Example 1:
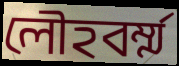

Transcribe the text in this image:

লৌহবর্ম্ম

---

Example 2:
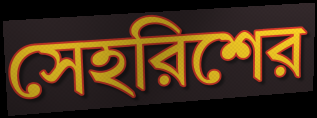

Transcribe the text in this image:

সেহরিশের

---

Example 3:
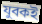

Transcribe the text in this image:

যুবকই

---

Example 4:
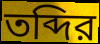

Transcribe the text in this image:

তব্দির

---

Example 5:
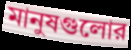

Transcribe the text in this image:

মানুষগুলোর